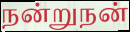
நன்றுநன்